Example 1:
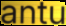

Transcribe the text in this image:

antu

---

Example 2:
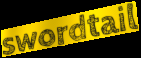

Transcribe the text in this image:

swordtail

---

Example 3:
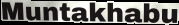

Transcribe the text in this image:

Muntakhabu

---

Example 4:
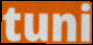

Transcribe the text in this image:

tuni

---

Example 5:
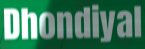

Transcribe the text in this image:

Dhondiyal